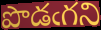
పొడఁగని